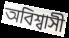
অবিশ্বাসী